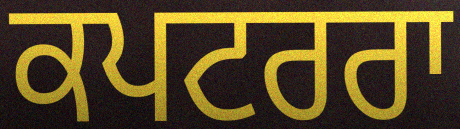
ਕਪਟਰਰਾ